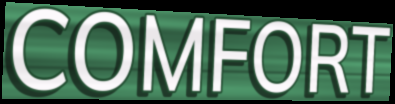
COMFORT